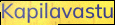
Kapilavastu